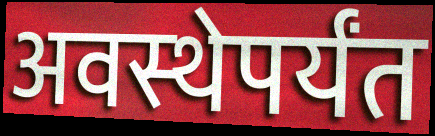
अवस्थेपर्यंत